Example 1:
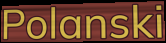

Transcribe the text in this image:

Polanski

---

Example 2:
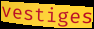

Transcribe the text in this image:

vestiges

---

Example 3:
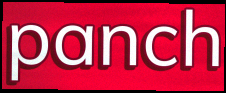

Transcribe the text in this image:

panch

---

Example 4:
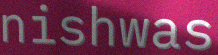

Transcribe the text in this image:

nishwas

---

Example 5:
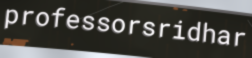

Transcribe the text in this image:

professorsridhar